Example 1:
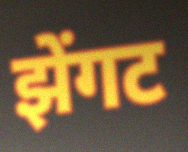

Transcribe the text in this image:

झेंगट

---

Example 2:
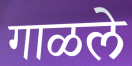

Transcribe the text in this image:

गाळले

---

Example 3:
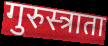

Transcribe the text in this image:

गुरुस्त्राता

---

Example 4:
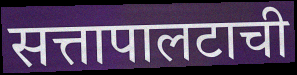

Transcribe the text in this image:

सत्तापालटाची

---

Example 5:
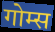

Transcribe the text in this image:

गोम्स